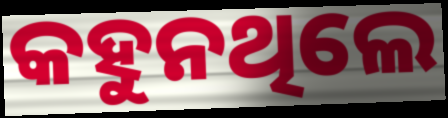
କହୁନଥିଲେ